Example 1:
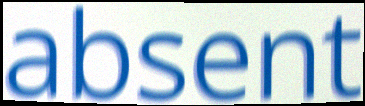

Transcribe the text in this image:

absent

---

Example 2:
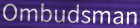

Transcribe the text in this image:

Ombudsman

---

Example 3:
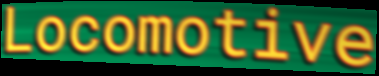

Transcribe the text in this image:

Locomotive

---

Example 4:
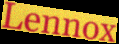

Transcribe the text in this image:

Lennox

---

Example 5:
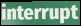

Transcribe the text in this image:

interrupt